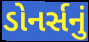
ડોનર્સનું